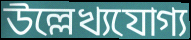
উল্লেখ্যযোগ্য